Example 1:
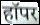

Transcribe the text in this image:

हॉपर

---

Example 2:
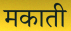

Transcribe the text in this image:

मकाती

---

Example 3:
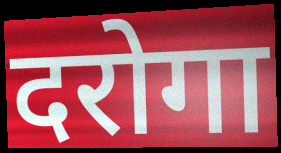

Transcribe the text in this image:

दरोगा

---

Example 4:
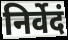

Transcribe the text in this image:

निर्वेदं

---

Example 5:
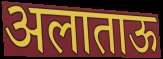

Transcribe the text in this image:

अलाताऊ